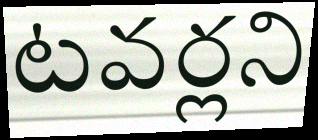
టవర్లని